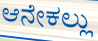
ಆನೇಕಲ್ಲು